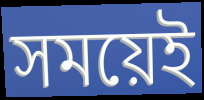
সময়েই